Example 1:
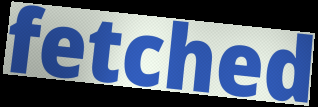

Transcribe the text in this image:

fetched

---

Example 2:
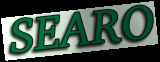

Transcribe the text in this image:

SEARO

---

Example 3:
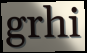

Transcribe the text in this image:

grhi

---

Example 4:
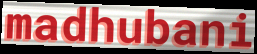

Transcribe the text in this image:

madhubani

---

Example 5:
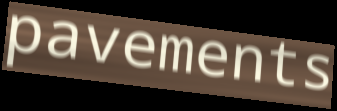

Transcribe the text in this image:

pavements